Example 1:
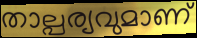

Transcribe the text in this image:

താല്പര്യവുമാണ്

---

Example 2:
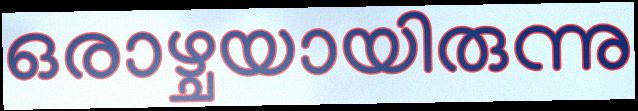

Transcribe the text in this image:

ഒരാഴ്ചയായിരുന്നു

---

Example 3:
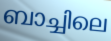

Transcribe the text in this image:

ബാച്ചിലെ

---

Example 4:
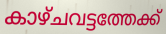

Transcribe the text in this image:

കാഴ്ചവട്ടത്തേക്ക്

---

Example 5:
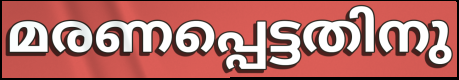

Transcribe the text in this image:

മരണപ്പെട്ടതിനു